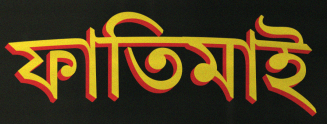
ফাতিমাই